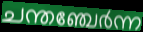
ചന്തഞ്ചേർന്ന